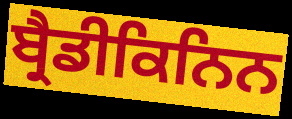
ਬ੍ਰੈਡੀਕਿਨਿਨ